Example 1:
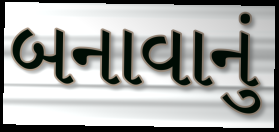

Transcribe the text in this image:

બનાવાનું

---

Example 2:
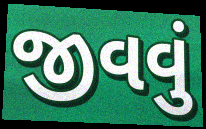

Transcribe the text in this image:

જીવવું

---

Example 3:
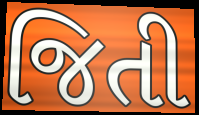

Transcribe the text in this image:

જિતી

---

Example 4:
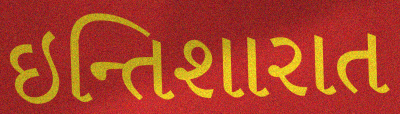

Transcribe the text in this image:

ઇન્તિશારાત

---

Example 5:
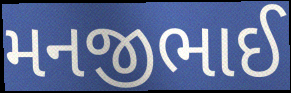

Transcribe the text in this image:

મનજીભાઈ